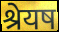
श्रेयष